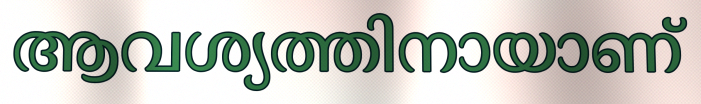
ആവശ്യത്തിനായാണ്